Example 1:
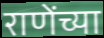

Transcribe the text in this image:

राणेंच्या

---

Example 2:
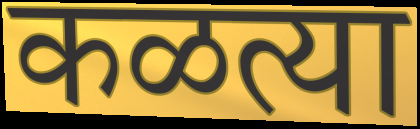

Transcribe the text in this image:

कळत्या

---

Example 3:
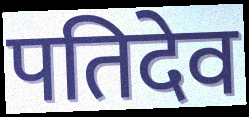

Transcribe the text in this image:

पतिदेव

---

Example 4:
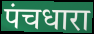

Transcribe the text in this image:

पंचधारा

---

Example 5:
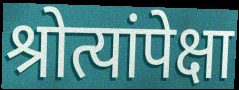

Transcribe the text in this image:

श्रोत्यांपेक्षा